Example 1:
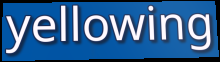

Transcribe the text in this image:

yellowing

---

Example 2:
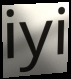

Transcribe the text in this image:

iyi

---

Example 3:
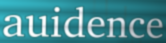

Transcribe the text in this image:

auidence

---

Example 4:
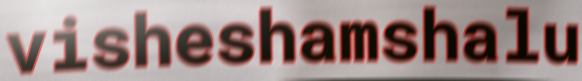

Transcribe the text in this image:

visheshamshalu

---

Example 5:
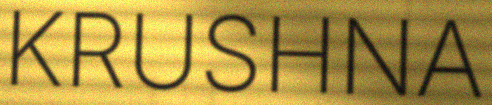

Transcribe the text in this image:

KRUSHNA